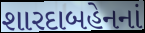
શારદાબહેનનાં